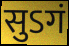
सुऽगं